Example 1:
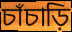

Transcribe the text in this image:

চাঁচাড়ি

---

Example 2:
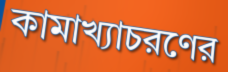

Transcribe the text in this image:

কামাখ্যাচরণের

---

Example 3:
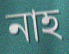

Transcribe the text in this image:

নাহ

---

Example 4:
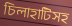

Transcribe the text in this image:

চিলাহাটিসহ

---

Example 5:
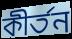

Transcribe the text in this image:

কীর্তন